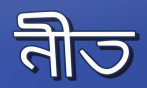
নীত